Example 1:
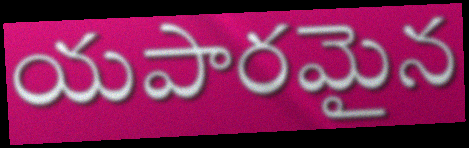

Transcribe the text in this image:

యపారమైన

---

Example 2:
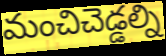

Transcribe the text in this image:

మంచిచెడ్డల్ని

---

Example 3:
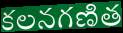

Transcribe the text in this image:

కలనగణిత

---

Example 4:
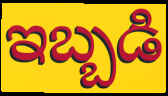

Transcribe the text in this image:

ఇబ్బడి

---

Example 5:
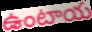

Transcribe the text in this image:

ఉంటాయ